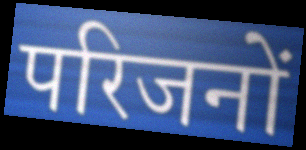
परिजनों